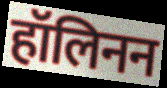
हॉलिनन